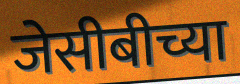
जेसीबीच्या